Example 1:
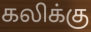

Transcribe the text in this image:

கலிக்கு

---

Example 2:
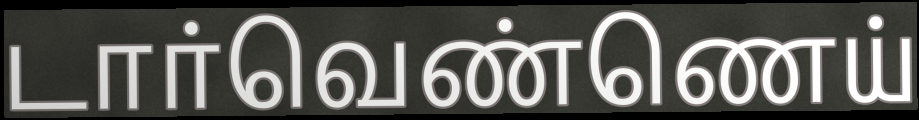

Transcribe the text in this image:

டார்வெண்ணெய்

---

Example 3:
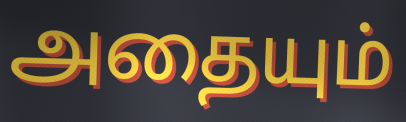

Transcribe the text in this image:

அதையும்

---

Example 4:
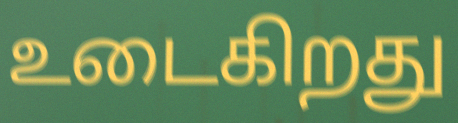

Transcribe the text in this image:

உடைகிறது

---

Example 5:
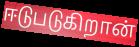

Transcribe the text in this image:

ஈடுபடுகிறான்